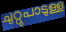
ചുറ്റുപാടുള്ള